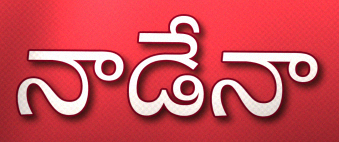
నాడేనా